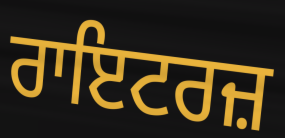
ਰਾਇਟਰਜ਼